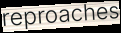
reproaches